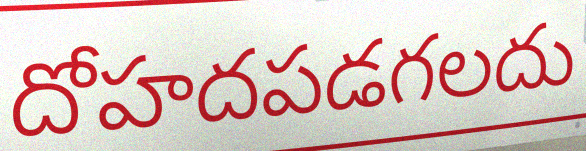
దోహదపడగలదు